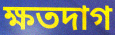
ক্ষতদাগ